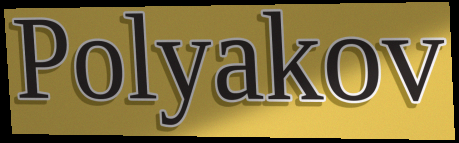
Polyakov